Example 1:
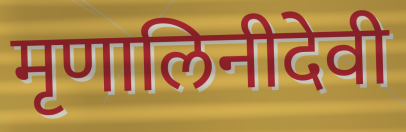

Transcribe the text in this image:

मृणालिनीदेवी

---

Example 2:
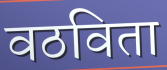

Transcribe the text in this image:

वठविता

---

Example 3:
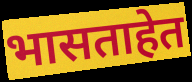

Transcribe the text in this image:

भासताहेत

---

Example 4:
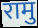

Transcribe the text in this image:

रामु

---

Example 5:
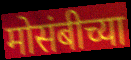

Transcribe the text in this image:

मोसंबीच्या